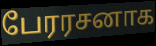
பேரரசனாக